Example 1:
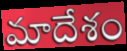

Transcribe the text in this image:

మాదేశం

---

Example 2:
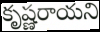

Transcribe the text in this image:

కృష్ణరాయని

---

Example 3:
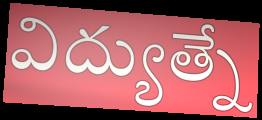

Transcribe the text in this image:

విద్యుత్నే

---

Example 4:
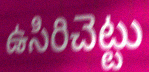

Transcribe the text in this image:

ఉసిరిచెట్టు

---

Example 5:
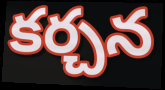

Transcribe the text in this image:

కర్చన